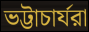
ভট্টাচার্যরা